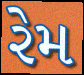
રેમ